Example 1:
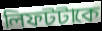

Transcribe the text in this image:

লিফটটাকে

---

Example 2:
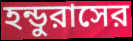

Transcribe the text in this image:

হন্ডুরাসের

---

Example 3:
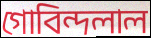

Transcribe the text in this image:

গোবিন্দলাল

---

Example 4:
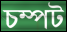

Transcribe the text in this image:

চম্পট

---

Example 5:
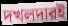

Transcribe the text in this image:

দখলদারই